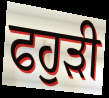
ਫਹੁੜੀ